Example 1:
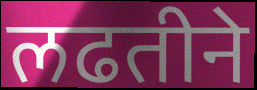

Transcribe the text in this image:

लढतीने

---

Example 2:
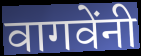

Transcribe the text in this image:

वागवेंनी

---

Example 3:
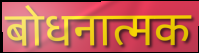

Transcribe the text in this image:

बोधनात्मक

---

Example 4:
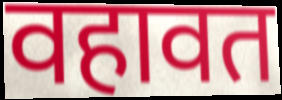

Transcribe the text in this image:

वहावत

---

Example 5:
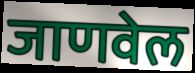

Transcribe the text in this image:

जाणवेल